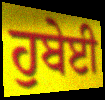
ਹੁਬੇਈ